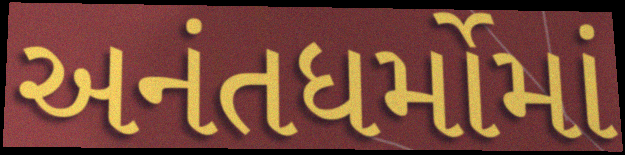
અનંતધર્મોમાં